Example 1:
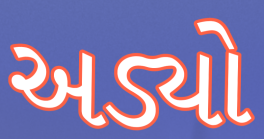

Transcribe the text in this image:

અડ્યો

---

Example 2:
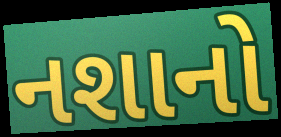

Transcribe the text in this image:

નશાનો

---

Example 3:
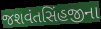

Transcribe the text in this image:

જશવંતસિંહજીના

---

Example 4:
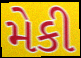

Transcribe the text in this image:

મેકી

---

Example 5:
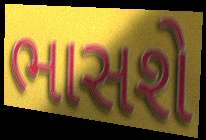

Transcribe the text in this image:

ભાસશે